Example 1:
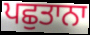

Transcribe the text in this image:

ਪਛੁਤਾਨਾ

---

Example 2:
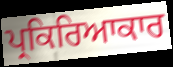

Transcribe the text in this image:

ਪ੍ਰਕਿਰਿਆਕਾਰ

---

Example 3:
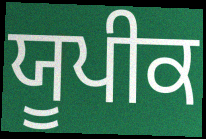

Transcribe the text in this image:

ਯੂਪੀਕ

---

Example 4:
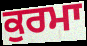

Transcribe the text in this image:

ਕੁਰਮਾ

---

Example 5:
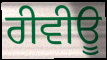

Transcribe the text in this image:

ਰੀਵੀਊ